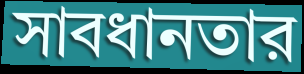
সাবধানতার